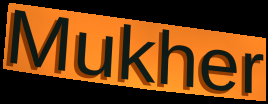
Mukher